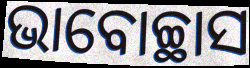
ଭାବୋଚ୍ଛାସ